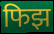
फिझ